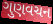
ગુણવચન